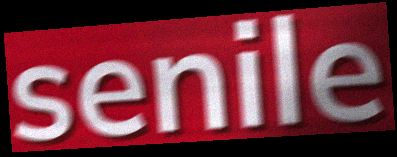
senile